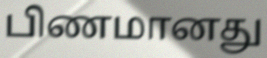
பிணமானது